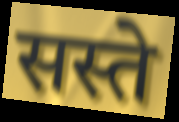
सस्‍ते